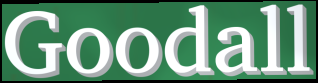
Goodall